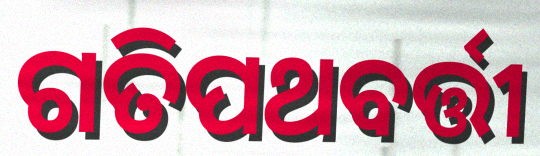
ଗତିପଥବର୍ତ୍ତୀ